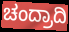
ಚಂದ್ರಾದಿ